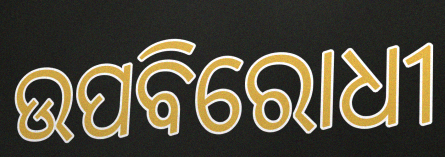
ଉପବିରୋଧୀ